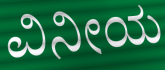
ವಿನೀಯ